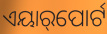
ଏୟାର୍‌ପୋର୍ଟ